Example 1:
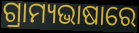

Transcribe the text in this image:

ଗ୍ରାମ୍ୟଭାଷାରେ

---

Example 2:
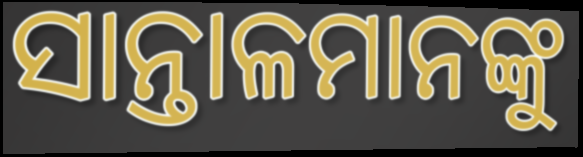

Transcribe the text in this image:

ସାନ୍ତାଳମାନଙ୍କୁ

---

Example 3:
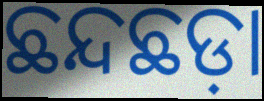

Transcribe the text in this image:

ଛନ୍ଦଛଡ଼ା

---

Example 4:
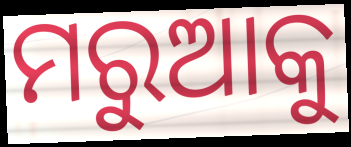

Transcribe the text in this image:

ମରୁଆକୁ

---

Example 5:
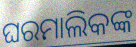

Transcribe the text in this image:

ଘରମାଲିକଙ୍କ